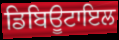
ਡਿਬਿਊਟਾਇਲ